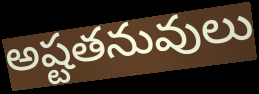
అష్టతనువులు